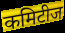
कमिटीज